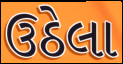
ઉઠેલા